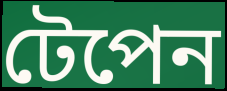
টেপেন